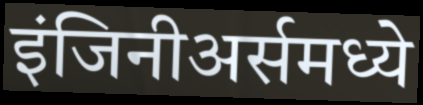
इंजिनीअर्समध्ये